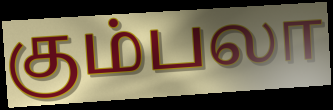
கும்பலா